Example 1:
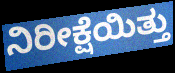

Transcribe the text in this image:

ನಿರೀಕ್ಷೆಯಿತ್ತು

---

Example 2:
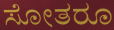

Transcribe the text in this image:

ಸೋತರೂ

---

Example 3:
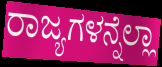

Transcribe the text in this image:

ರಾಜ್ಯಗಳನ್ನೆಲ್ಲಾ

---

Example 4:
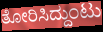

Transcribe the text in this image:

ತೋರಿಸಿದ್ದುಂಟು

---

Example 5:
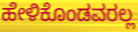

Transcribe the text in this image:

ಹೇಳಿಕೊಂಡವರಲ್ಲ